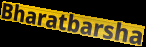
Bharatbarsha